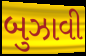
બુઝાવી